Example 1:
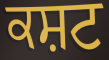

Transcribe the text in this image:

ਕਸ਼ਟ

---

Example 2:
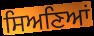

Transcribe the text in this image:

ਸਿਅਣਿਆਂ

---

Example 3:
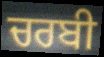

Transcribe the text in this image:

ਚਰਬੀ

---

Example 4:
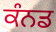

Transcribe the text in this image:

ਕੰਨਡ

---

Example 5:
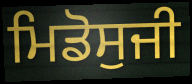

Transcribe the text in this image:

ਮਿਡੋਸੁਜੀ